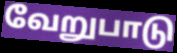
வேறுபாடு